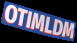
OTIMLDM